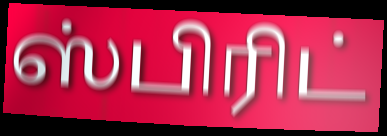
ஸ்பிரிட்